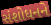
સંશોધનને